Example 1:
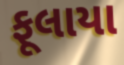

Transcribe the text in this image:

ફૂલાયા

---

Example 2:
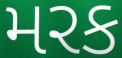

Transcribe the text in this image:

મરક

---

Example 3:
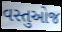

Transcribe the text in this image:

વસ્તુઓજ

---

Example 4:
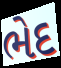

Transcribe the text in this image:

ભેદ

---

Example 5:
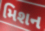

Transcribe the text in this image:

મિશન